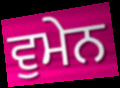
ਵੁਮੇਨ